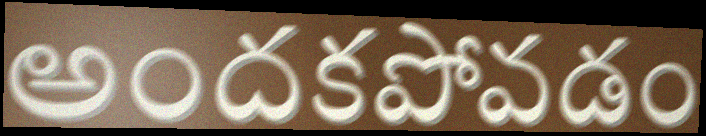
అందకపోవడం